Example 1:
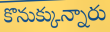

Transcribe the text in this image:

కొనుక్కున్నారు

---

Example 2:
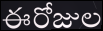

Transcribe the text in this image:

ఈరోజుల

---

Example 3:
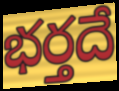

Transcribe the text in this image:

భర్తదే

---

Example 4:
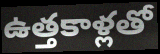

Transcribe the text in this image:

ఉత్తకాళ్లతో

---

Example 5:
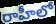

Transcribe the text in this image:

రాహీలో